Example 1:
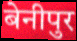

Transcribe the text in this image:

बेनीपुर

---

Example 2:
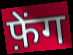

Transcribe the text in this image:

फ़ेंग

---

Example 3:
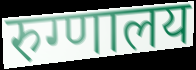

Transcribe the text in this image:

रुग्णालय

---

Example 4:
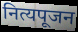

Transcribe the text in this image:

नित्यपूजन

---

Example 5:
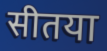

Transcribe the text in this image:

सीतया